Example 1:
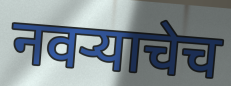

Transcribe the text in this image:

नवऱ्याचेच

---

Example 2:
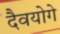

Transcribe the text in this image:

दैवयोगे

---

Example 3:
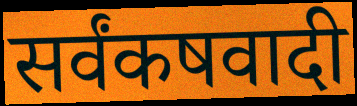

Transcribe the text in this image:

सर्वंकषवादी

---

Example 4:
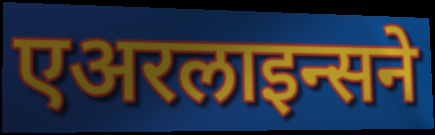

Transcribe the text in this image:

एअरलाइन्सने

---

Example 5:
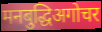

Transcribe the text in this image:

मनबुद्धिअगोचर